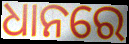
ଧାନରେ